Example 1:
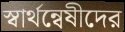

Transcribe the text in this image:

স্বার্থন্বেষীদের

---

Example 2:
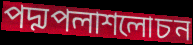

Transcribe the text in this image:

পদ্মপলাশলোচন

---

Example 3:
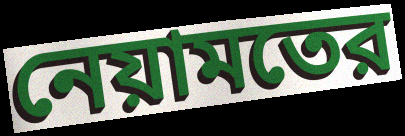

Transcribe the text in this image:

নেয়ামতের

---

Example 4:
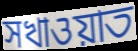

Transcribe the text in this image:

সখাওয়াত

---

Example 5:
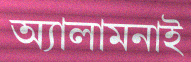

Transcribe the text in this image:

অ্যালামনাই